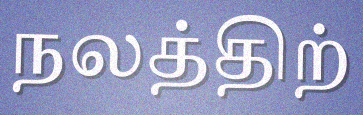
நலத்திற்